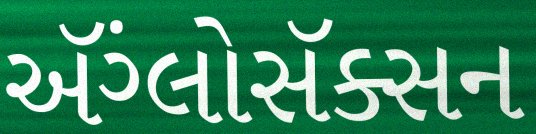
ઍંગ્લોસૅક્સન